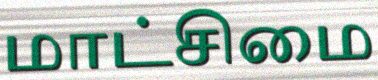
மாட்சிமை